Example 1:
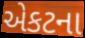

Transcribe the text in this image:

એકટના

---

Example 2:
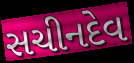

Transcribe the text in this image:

સચીનદેવ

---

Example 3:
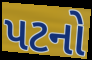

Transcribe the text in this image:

પટનો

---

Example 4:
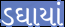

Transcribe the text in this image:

ડઘાયાં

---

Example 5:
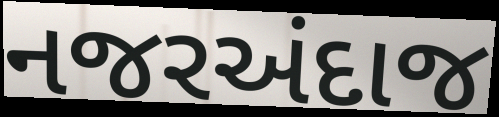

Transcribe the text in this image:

નજરઅંદાજ